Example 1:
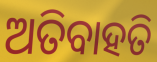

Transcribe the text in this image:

ଅତିବାହତି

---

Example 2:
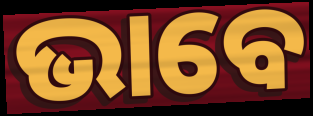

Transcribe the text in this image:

ଭାବେ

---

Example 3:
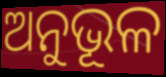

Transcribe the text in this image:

ଅନୁଭୂଳ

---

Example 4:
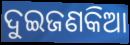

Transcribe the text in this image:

ଦୁଇଜଣକିଆ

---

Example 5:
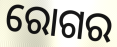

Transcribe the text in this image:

ରୋଗର